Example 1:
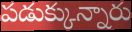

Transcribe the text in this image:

పడుక్కున్నారు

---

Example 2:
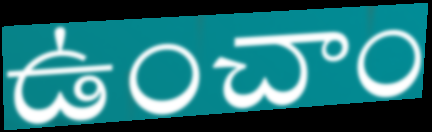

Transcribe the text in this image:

ఉంచాం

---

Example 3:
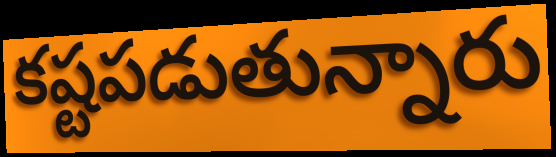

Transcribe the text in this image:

కష్టపడుతున్నారు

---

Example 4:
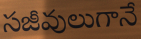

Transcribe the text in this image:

సజీవులుగానే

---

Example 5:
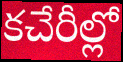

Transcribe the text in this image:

కచేరీల్లో